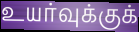
உயர்வுக்குக்